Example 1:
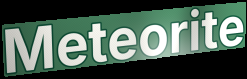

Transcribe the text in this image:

Meteorite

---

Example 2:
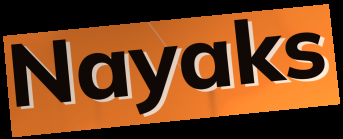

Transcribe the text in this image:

Nayaks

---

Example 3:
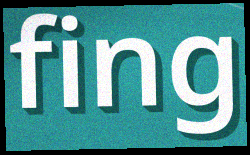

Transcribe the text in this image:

fing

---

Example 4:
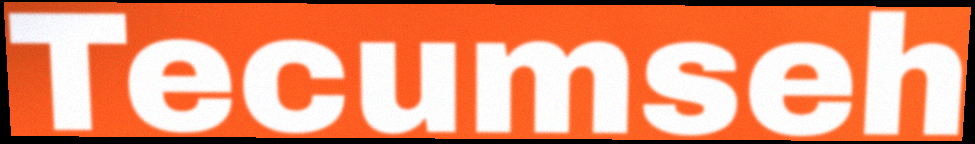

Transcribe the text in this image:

Tecumseh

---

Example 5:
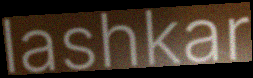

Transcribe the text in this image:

lashkar